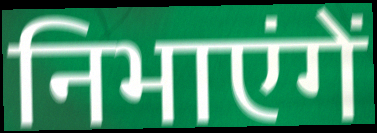
निभाएंगें